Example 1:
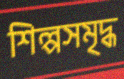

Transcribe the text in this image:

শিল্পসমৃদ্ধ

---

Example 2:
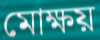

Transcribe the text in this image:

মোক্ষয়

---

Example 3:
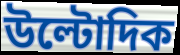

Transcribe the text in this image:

উল্টোদিক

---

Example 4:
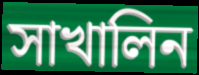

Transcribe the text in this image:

সাখালিন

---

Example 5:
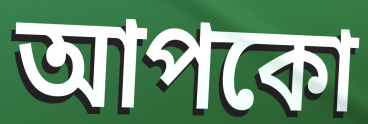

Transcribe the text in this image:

আপকো